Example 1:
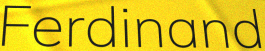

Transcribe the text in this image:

Ferdinand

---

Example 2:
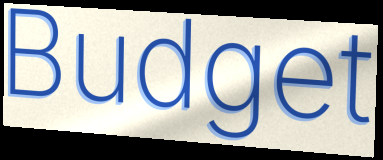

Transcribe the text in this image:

Budget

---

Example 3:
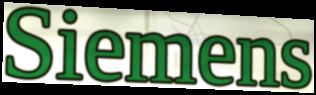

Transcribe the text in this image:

Siemens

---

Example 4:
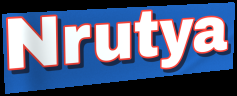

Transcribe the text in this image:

Nrutya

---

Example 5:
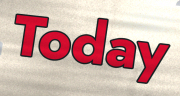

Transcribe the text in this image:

Today